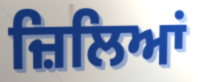
ਜ਼ਿਲਿਆਂ